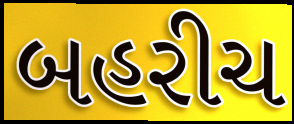
બહરીચ